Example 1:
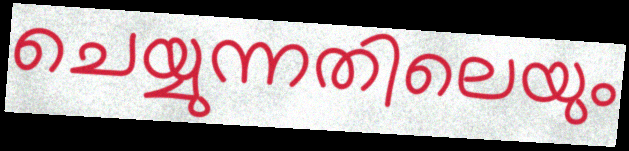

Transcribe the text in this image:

ചെയ്യുന്നതിലെയും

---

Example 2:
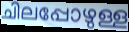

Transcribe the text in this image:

ചിലപ്പോഴുള്ള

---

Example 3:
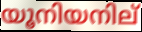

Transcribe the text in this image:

യൂനിയനില്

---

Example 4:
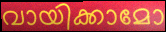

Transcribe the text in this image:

വായിക്കാമോ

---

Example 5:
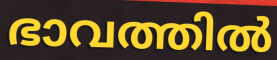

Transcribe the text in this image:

ഭാവത്തിൽ